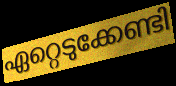
ഏറ്റെടുക്കേണ്ടി